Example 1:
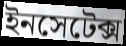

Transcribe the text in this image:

ইনসেটেক্স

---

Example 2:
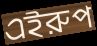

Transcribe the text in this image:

এইরুপ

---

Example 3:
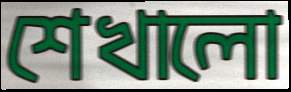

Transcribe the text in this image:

শেখালো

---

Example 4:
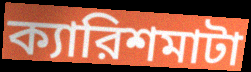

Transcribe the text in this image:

ক্যারিশমাটা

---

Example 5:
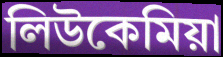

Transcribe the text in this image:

লিউকেমিয়া